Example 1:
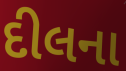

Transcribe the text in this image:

દીલના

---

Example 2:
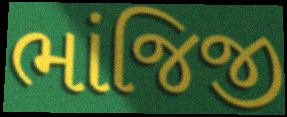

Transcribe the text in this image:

ભાંજિજી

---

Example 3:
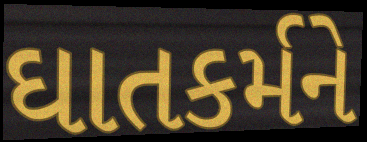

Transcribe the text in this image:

ઘાતકર્મને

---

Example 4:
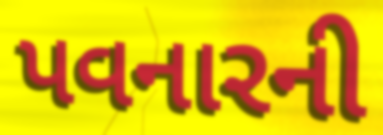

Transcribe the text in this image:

પવનારની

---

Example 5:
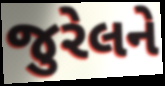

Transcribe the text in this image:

જુરેલને